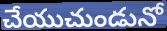
చేయుచుండునో